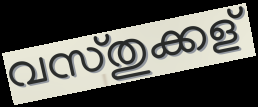
വസ്തുക്കള്